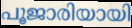
പൂജാരിയായി